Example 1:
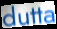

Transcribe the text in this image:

dutta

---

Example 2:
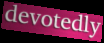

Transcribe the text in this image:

devotedly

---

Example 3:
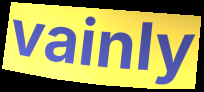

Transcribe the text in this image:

vainly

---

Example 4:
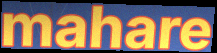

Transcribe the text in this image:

mahare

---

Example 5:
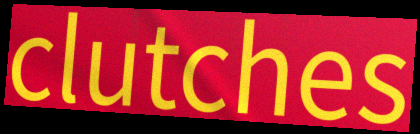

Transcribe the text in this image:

clutches